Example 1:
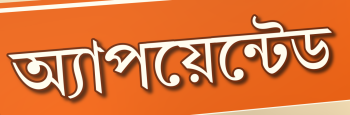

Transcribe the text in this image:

অ্যাপয়েন্টেড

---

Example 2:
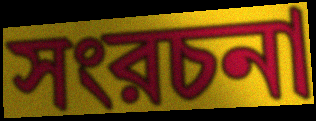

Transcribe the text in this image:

সংরচনা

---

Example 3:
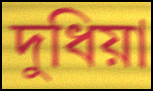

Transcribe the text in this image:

দুধিয়া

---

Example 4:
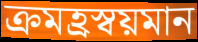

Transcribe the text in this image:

ক্রমহ্রস্বয়মান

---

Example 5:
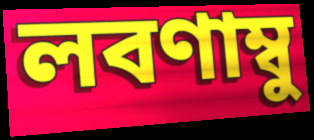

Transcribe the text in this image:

লবণাম্বু